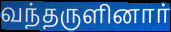
வந்தருளினார்